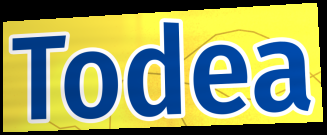
Todea